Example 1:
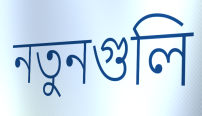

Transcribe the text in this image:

নতুনগুলি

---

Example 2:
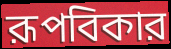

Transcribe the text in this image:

রূপবিকার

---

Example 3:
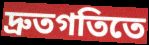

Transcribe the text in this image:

দ্রুতগতিতে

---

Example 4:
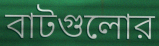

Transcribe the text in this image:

বাটগুলোর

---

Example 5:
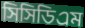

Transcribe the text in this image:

সিসিডিএম